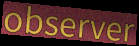
observer